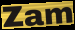
Zam